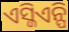
ଏସ୍ଜିଏନ୍ପି